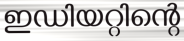
ഇഡിയറ്റിന്റെ